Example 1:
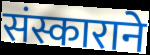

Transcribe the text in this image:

संस्काराने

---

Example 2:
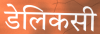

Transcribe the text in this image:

डेलिकसी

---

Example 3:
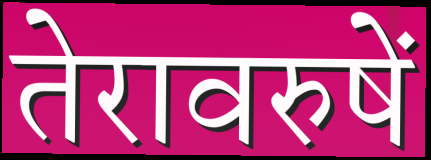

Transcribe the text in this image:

तेरावरुषें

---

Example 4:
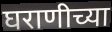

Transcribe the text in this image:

घराणीच्या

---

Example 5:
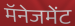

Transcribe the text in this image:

मॅनेजमेंट